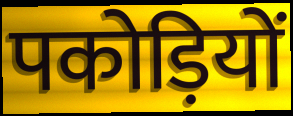
पकोड़ियों